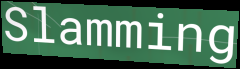
Slamming